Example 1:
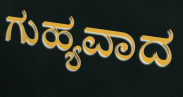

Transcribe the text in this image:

ಗುಹ್ಯವಾದ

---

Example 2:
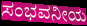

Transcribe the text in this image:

ಸಂಭವನೀಯ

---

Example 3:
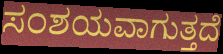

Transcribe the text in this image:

ಸಂಶಯವಾಗುತ್ತದೆ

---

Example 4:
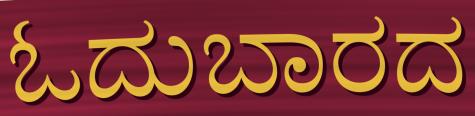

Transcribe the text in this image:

ಓದುಬಾರದ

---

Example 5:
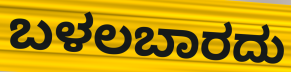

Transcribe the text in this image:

ಬಳಲಬಾರದು